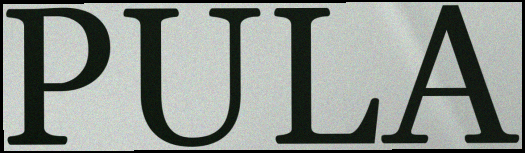
PULA